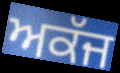
ਅਕੱਜ